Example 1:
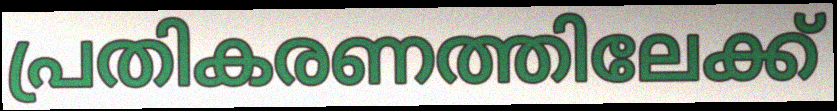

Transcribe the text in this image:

പ്രതികരണത്തിലേക്ക്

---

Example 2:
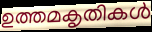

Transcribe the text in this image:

ഉത്തമകൃതികൾ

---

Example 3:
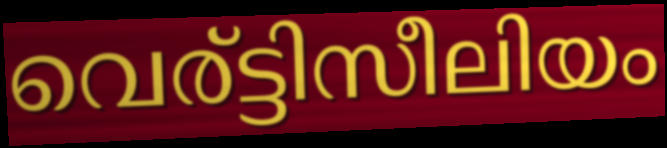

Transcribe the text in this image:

വെര്ട്ടിസീലിയം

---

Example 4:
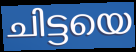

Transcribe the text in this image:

ചിട്ടയെ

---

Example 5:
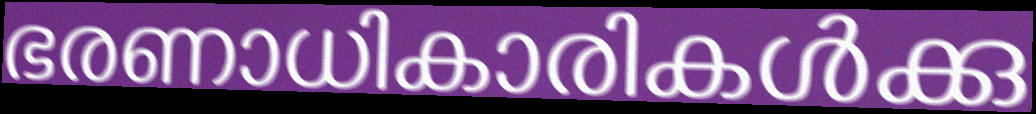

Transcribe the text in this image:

ഭരണാധികാരികൾക്കു